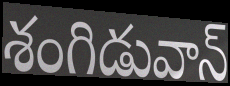
శంగిడువాన్